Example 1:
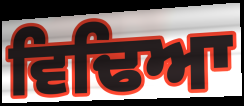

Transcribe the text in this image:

ਵਿਢਿਆ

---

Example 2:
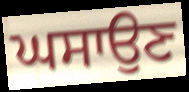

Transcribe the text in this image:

ਘਸਾਉਣ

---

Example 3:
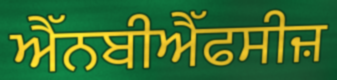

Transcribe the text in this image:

ਐੱਨਬੀਐੱਫਸੀਜ਼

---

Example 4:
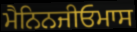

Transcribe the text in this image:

ਮੈਨਿਨਜੀਓਮਾਸ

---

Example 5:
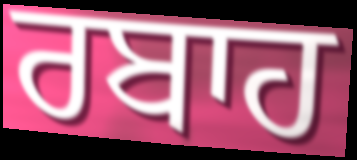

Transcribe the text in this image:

ਰਬਾਹ